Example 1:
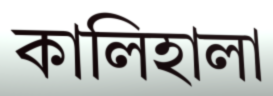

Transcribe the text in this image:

কালিহালা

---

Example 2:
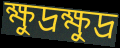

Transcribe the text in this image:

ক্ষুদ্রক্ষুদ্র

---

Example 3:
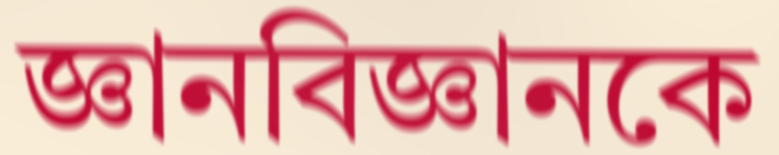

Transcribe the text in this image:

জ্ঞানবিজ্ঞানকে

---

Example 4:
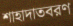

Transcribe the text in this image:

শাহাদাতবরণ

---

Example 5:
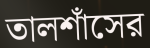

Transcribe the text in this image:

তালশাঁসের